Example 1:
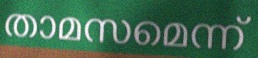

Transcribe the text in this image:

താമസമെന്ന്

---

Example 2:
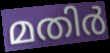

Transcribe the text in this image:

മതിർ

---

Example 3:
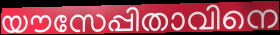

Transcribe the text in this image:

യൗസേപ്പിതാവിനെ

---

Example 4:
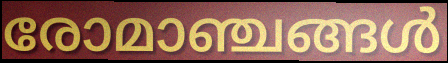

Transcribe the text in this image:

രോമാഞ്ചങ്ങൾ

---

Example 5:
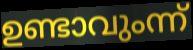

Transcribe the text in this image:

ഉണ്ടാവുംന്ന്